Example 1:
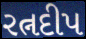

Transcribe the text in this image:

રત્નદીપ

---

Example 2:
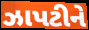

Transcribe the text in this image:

ઝાપટીને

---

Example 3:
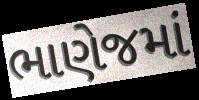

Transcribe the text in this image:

ભાણેજમાં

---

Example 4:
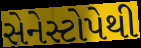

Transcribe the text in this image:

સેનેસ્ટોપેથી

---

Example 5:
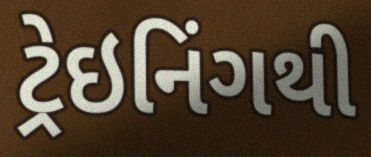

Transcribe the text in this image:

ટ્રેઇનિંગથી